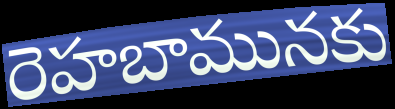
రెహబామునకు